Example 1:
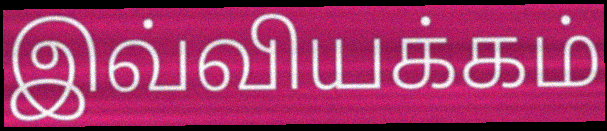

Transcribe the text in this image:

இவ்வியக்கம்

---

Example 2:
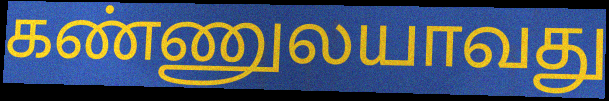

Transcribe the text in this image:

கண்ணுலயாவது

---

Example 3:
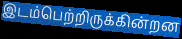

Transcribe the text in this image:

இடம்பெற்றிருக்கின்றன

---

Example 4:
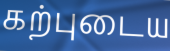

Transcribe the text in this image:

கற்புடைய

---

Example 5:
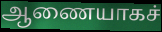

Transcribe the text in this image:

ஆணையாகச்